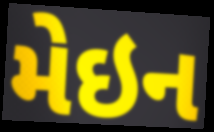
મેઇન